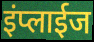
इंप्लाईज